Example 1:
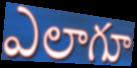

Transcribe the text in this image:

ఎలాగూ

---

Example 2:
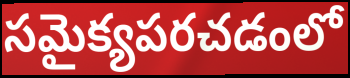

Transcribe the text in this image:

సమైక్యపరచడంలో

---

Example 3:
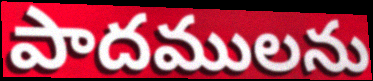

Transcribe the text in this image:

పాదములను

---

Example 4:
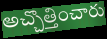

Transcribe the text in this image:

అచ్చొత్తించారు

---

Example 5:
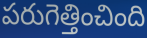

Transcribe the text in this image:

పరుగెత్తించింది